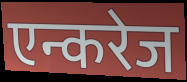
एन्करेज